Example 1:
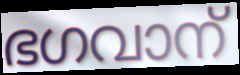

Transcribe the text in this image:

ഭഗവാന്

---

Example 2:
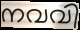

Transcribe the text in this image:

നവവി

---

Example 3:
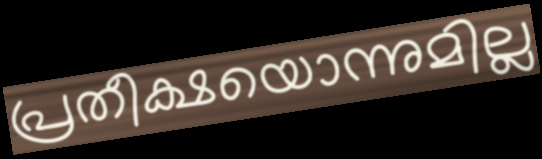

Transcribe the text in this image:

പ്രതീക്ഷയൊന്നുമില്ല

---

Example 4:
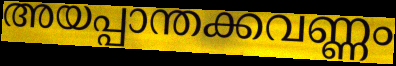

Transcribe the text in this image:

അയപ്പാന്തക്കവണ്ണം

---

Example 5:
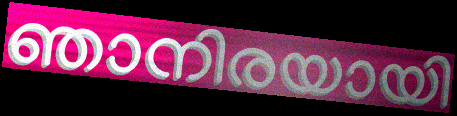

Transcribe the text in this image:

ഞാനിരയായി